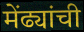
मेंढ्यांची